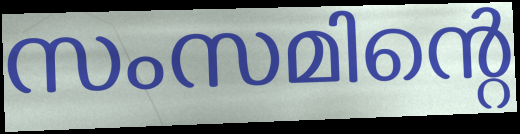
സംസമിന്റെ